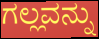
ಗಲ್ಲವನ್ನು